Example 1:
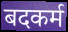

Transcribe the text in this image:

बदकर्म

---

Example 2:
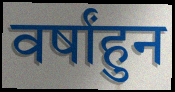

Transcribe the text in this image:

वर्षांहुन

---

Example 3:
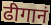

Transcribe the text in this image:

ढीगानं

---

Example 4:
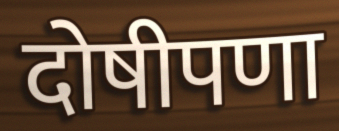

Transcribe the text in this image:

दोषीपणा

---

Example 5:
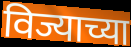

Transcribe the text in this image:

विज्याच्या